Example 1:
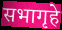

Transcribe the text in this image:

सभागृहे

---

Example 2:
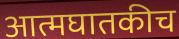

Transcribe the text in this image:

आत्मघातकीच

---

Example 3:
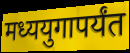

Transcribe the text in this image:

मध्ययुगापर्यंत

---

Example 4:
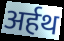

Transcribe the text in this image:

अर्हथ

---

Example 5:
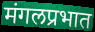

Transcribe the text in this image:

मंगलप्रभात